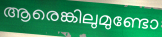
ആരെങ്കിലുമുണ്ടോ